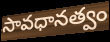
సావధానత్వం